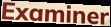
Examiner